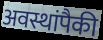
अवस्थांपैकी